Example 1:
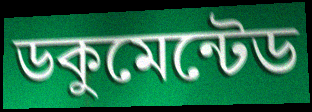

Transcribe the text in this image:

ডকুমেন্টেড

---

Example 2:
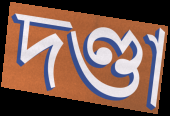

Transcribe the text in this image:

দণ্ডা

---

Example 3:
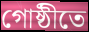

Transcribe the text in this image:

গোষ্ঠীতে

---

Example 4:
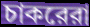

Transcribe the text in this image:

চাকরেরা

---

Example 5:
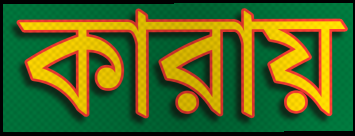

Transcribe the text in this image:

কারায়